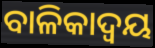
ବାଳିକାଦ୍ୱୟ